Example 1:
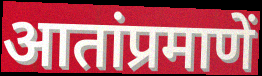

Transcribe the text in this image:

आतांप्रमाणें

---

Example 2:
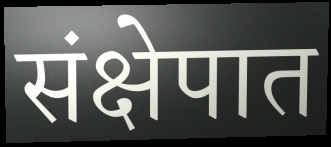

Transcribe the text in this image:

संक्षेपात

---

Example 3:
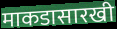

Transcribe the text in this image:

माकडासारखी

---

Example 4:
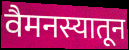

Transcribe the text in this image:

वैमनस्यातून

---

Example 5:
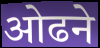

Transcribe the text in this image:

ओढने